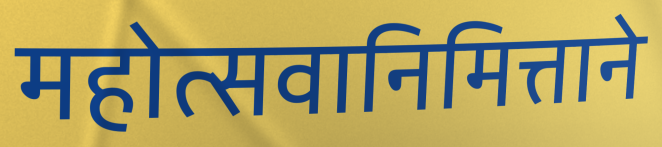
महोत्सवानिमित्ताने